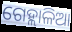
ଗେହ୍ଲାଳିଆ